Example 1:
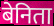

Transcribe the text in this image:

बेनिता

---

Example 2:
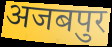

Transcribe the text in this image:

अजबपुर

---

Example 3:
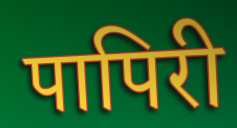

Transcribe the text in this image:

पापिरी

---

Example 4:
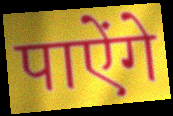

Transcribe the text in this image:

पाऐंगे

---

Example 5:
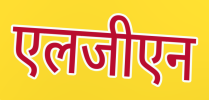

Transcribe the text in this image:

एलजीएन